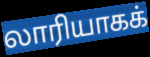
லாரியாகக்